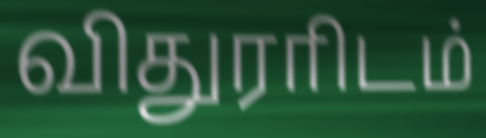
விதுரரிடம்